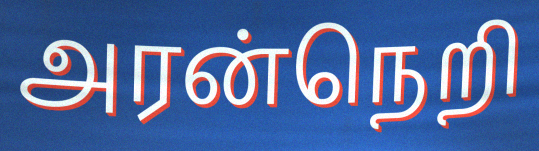
அரன்நெறி